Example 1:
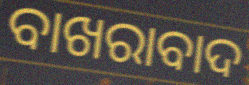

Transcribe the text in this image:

ବାଖରାବାଦ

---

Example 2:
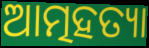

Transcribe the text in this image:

ଆତ୍ମହତ୍ୟା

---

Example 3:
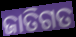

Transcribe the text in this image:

ଜାତିଗତ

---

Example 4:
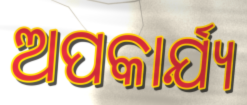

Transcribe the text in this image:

ଅପକାର୍ଯ୍ୟ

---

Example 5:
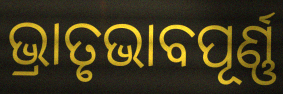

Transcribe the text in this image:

ଭ୍ରାତୃଭାବପୂର୍ଣ୍ଣ